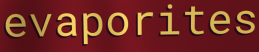
evaporites